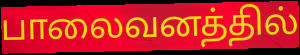
பாலைவனத்தில்